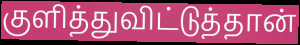
குளித்துவிட்டுத்தான்